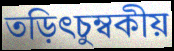
তড়িৎচুম্বকীয়